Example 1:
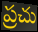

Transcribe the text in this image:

ప్రచు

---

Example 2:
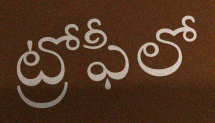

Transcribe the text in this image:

ట్రోఫీలో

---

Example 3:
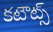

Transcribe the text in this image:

కటౌట్స్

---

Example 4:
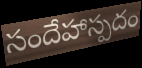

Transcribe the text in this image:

సందేహాస్పదం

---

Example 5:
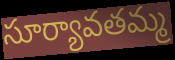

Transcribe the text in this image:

సూర్యావతమ్మ